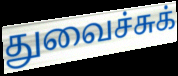
துவைச்சுக்